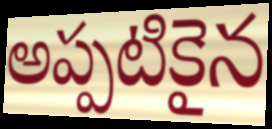
అప్పటికైన